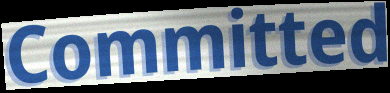
Committed